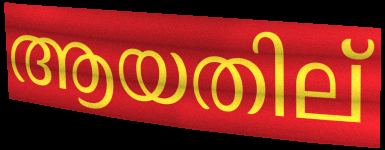
ആയതില്